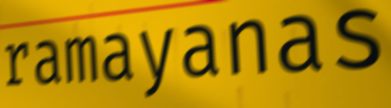
ramayanas